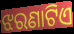
ଝରଣାଟିଏ